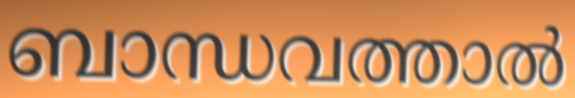
ബാന്ധവത്താൽ